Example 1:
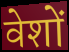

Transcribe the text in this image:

वेशों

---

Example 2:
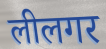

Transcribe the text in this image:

लीलगर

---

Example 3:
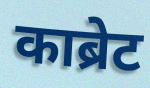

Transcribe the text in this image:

काब्रेट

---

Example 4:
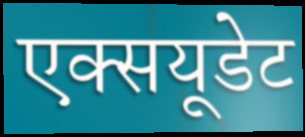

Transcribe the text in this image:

एक्सयूडेट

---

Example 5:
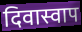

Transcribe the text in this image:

दिवास्वाप